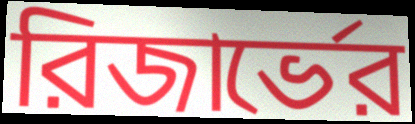
রিজার্ভের